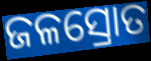
ଜଳସ୍ରୋତ